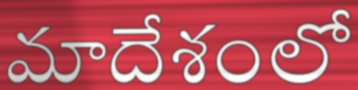
మాదేశంలో